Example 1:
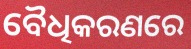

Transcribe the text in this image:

ବୈଧିକରଣରେ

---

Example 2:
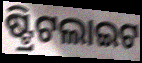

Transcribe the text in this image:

ଷ୍ଟ୍ରିଟଲାଇଟ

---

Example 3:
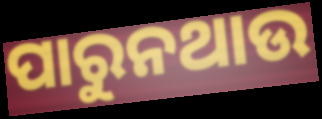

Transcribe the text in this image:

ପାରୁନଥାଉ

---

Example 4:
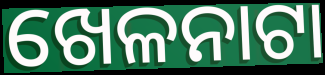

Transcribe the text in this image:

ଖେଳନାଟା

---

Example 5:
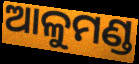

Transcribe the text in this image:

ଆଳୁମଣ୍ଡ